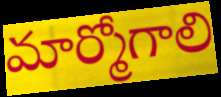
మార్మోగాలి